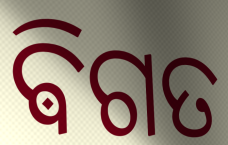
ଵିଗତ